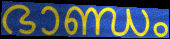
ഭാണ്ഡം